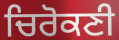
ਚਿਰੋਕਣੀ